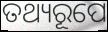
ତଥ୍ୟରୂପେ